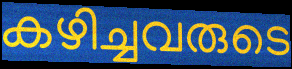
കഴിച്ചവരുടെ